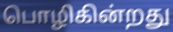
பொழிகின்றது